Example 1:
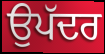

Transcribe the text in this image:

ਉਪੱਦਰ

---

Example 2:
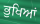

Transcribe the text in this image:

ਭੁਖਿਆਂ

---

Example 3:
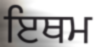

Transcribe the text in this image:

ਇਥਮ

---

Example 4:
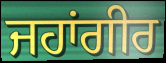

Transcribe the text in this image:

ਜਹਾਂਗੀਰ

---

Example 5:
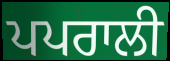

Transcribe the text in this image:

ਪਪਰਾਲੀ